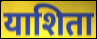
याशिता